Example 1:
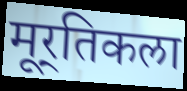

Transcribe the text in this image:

मूर्तिकला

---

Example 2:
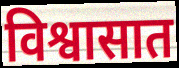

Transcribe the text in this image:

विश्वासात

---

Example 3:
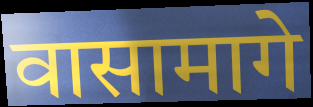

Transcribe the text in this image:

वासामागे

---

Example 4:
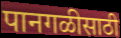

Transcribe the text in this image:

पानगळीसाठी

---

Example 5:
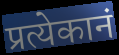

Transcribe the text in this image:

प्रत्येकानं